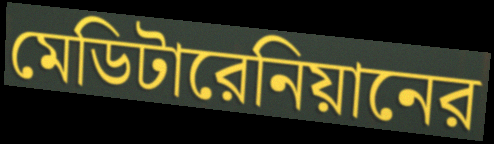
মেডিটারেনিয়ানের